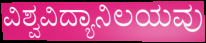
ವಿಶ್ವವಿದ್ಯಾನಿಲಯವು